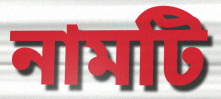
নামটি